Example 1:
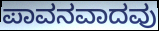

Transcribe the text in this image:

ಪಾವನವಾದವು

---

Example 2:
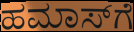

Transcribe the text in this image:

ಹಮಾಸ್‌ಗೆ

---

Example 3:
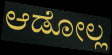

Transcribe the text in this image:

ಆಡೋಲ್ಲ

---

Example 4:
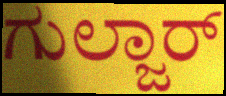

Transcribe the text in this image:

ಗುಲ್ಜಾರ್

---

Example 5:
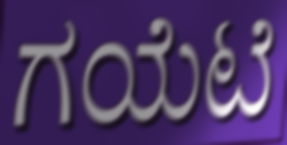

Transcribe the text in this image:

ಗಯೆಟೆ